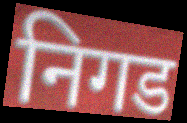
निगड